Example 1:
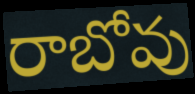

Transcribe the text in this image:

రాబోవు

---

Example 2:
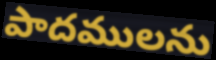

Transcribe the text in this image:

పాదములను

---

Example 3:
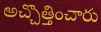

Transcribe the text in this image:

అచ్చొత్తించారు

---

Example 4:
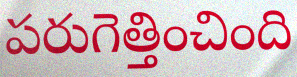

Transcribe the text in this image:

పరుగెత్తించింది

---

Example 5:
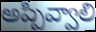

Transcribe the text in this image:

అప్పివ్వాలి